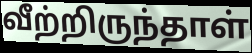
வீற்றிருந்தாள்